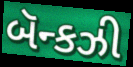
બૅન્કઝી